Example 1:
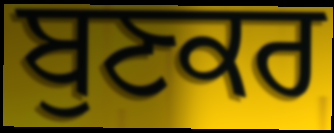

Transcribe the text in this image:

ਬੁਣਕਰ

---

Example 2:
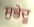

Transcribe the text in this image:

ਸੁਭੇਦੂ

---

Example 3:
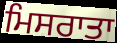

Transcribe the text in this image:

ਮਿਸਰਾਤਾ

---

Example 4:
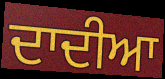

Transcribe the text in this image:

ਦਾਦੀਆ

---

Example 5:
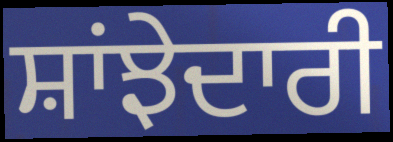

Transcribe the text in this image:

ਸ਼ਾਂਝੇਦਾਰੀ